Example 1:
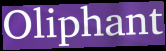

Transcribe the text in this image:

Oliphant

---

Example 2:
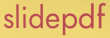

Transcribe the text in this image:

slidepdf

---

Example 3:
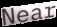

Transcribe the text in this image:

Near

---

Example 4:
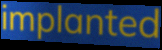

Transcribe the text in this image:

implanted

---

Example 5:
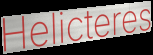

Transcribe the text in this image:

Helicteres